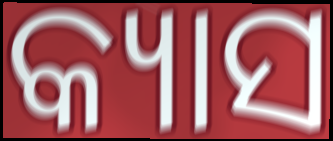
କ୍ୟାସ